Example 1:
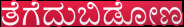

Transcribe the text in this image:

ತೆಗೆದುಬಿಡೋಣ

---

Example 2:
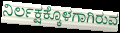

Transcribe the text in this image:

ನಿರ್ಲಕ್ಷಕ್ಕೊಳಗಾಗಿರುವ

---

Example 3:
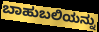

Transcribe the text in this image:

ಬಾಹುಬಲಿಯನ್ನು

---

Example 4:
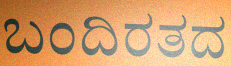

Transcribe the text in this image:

ಬಂದಿರತದ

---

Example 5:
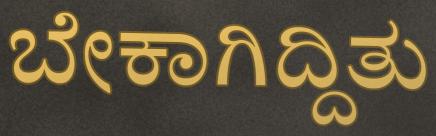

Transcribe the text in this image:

ಬೇಕಾಗಿದ್ದಿತು